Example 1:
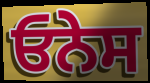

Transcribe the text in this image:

ਓਨੇਸ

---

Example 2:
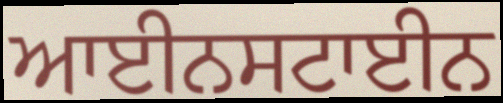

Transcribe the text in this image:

ਆਈਨਸਟਾਈਨ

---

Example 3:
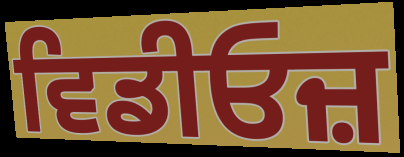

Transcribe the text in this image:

ਵਿਡੀਓਜ਼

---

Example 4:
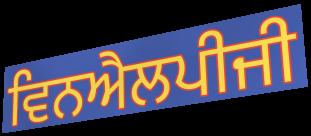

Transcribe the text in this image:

ਵਿਨਐਲਪੀਜੀ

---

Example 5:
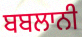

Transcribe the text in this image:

ਬਬਲਾਨੀ